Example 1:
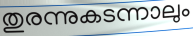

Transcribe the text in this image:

തുരന്നുകടന്നാലും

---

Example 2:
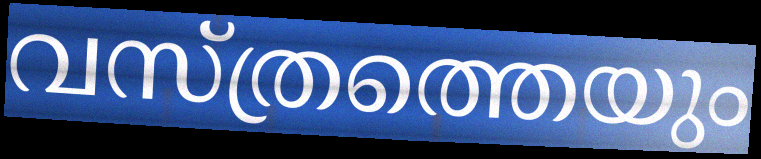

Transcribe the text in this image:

വസ്ത്രത്തെയും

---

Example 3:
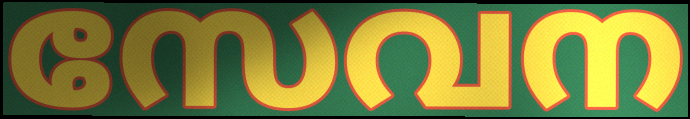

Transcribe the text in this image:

സേവന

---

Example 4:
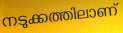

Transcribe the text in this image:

നടുക്കത്തിലാണ്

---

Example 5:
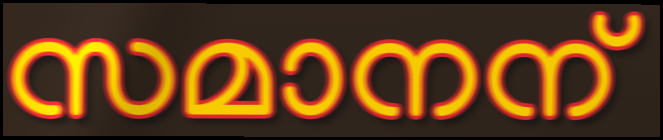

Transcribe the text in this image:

സമാനന്